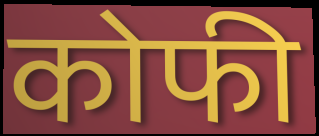
कोफी